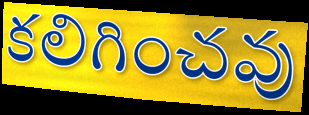
కలిగించవు